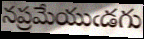
నప్రమేయుఁడగు